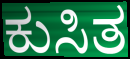
ಕುಸಿತ